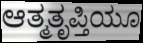
ಆತ್ಮತೃಪ್ತಿಯೂ